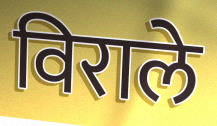
विराले